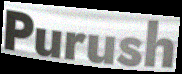
Purush